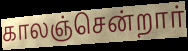
காலஞ்சென்றார்